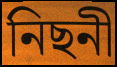
নিছনী